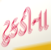
ટુકડીના